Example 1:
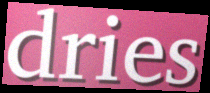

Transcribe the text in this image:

dries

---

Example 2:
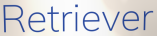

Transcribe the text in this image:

Retriever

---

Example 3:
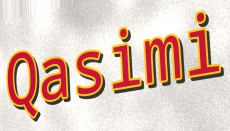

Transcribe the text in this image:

Qasimi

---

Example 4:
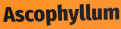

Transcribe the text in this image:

Ascophyllum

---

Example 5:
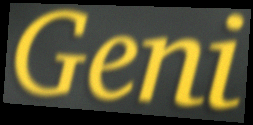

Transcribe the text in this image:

Geni